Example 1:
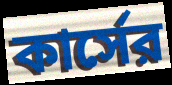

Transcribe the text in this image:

কার্সের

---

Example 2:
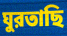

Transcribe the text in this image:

ঘুরতাছি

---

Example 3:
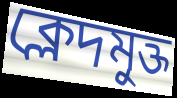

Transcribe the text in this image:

ক্লেদমুক্ত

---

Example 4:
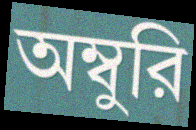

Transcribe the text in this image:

অম্বুরি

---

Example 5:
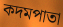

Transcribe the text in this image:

কদমপাতা